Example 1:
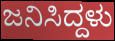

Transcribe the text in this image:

ಜನಿಸಿದ್ದಳು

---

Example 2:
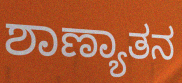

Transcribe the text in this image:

ಶಾಣ್ಯಾತನ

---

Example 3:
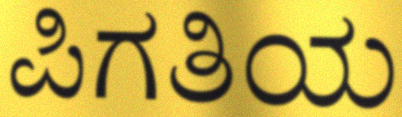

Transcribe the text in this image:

ಪಿಗತಿಯ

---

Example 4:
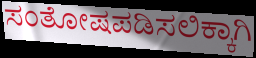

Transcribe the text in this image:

ಸಂತೋಷಪಡಿಸಲಿಕ್ಕಾಗಿ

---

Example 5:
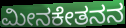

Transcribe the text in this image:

ಮೀನಕೇತನನ